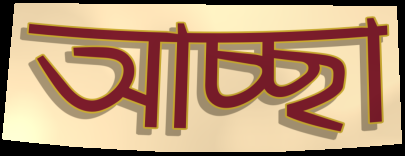
আচ্ছা